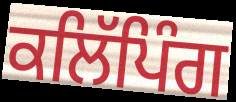
ਕਲਿੱਪਿੰਗ